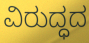
ವಿರುದ್ಧದ